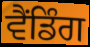
ਵੈਂਡਿੰਗ